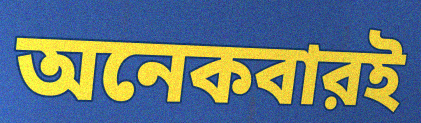
অনেকবারই